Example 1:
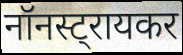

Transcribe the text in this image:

नॉनस्ट्रायकर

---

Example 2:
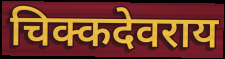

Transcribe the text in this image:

चिक्कदेवराय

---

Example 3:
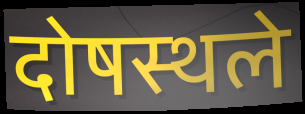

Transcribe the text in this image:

दोषस्थले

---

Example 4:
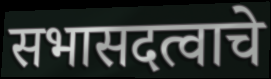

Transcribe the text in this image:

सभासदत्वाचे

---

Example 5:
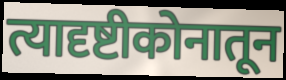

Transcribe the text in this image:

त्यादृष्टीकोनातून